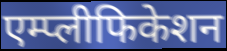
एम्प्लीफिकेशन